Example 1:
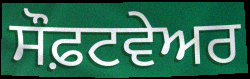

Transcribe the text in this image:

ਸੌਫ਼ਟਵੇਅਰ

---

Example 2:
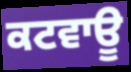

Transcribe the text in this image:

ਕਟਵਾਊ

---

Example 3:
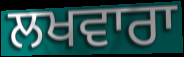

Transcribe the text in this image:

ਲਖਵਾਰਾ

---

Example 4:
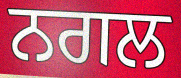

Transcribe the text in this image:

ਨਗਲ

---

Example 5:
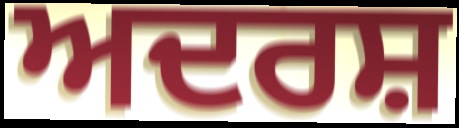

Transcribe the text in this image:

ਅਦਰਸ਼